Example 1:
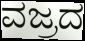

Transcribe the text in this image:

ವಜ್ರದ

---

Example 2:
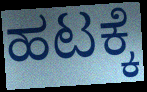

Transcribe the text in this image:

ಹಟಕ್ಕೆ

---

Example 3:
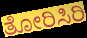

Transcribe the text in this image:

ತೋರಿಸಿರಿ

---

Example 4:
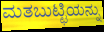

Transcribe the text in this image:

ಮತಬುಟ್ಟಿಯನ್ನು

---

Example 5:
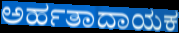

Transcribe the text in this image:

ಅರ್ಹತಾದಾಯಕ